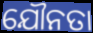
ଯୌନତା